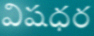
విషధర